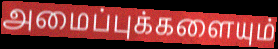
அமைப்புக்களையும்